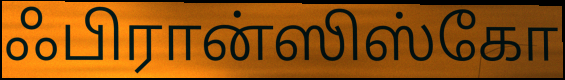
ஃபிரான்ஸிஸ்கோ